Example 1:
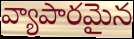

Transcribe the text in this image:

వ్యాపారమైన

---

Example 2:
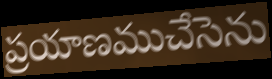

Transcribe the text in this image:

ప్రయాణముచేసెను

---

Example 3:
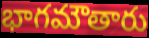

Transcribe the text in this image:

భాగమౌతారు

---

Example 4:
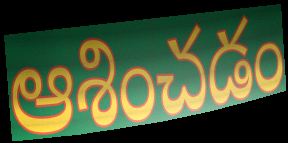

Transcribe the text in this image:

ఆశించడం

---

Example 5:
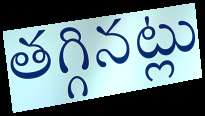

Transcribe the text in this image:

తగ్గినట్లు